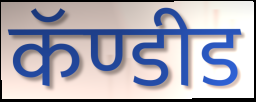
कॅण्डीड